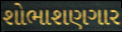
શોભાશણગાર